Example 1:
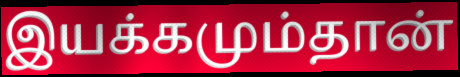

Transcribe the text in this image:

இயக்கமும்தான்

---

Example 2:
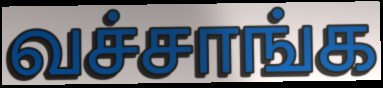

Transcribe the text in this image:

வச்சாங்க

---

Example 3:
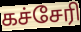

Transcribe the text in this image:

கச்சேரி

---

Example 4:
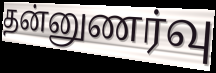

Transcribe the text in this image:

தன்னுணர்வு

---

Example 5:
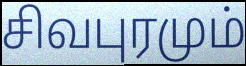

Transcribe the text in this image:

சிவபுரமும்